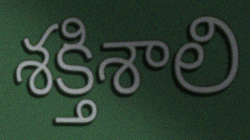
శక్తిశాలి